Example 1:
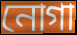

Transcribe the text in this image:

নোগা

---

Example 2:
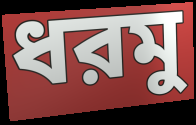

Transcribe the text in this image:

ধরমু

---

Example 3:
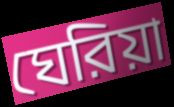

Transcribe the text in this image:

ঘেরিয়া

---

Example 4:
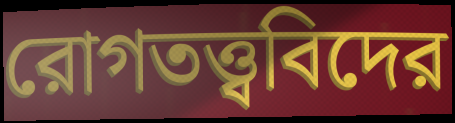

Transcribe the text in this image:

রোগতত্ত্ববিদের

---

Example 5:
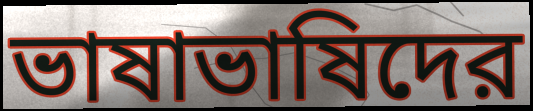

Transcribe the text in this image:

ভাষাভাষিদের